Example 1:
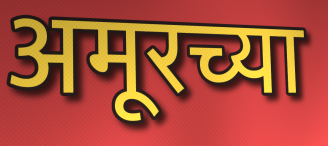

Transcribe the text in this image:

अमूरच्या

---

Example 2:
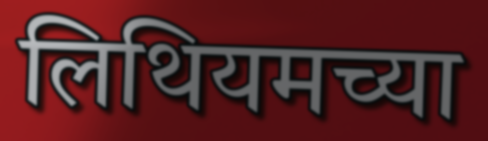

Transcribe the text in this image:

लिथियमच्या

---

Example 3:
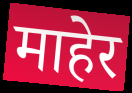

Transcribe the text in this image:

माहेर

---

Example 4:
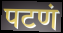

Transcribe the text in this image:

पटणं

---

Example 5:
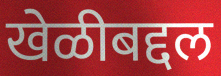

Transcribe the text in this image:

खेळीबद्दल